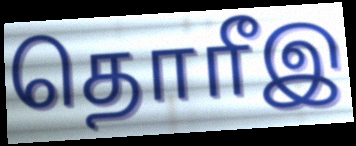
தொரீஇ